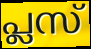
പ്ലസ്